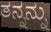
ತನ್ನನ್ನು